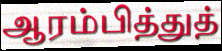
ஆரம்பித்துத்